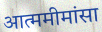
आत्ममीमांसा